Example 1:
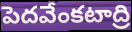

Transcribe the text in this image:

పెదవేంకటాద్రి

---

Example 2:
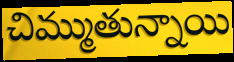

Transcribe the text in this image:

చిమ్ముతున్నాయి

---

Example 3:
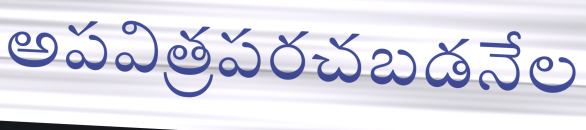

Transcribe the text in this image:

అపవిత్రపరచబడనేల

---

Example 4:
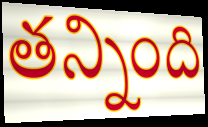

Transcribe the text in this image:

తన్నింది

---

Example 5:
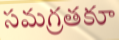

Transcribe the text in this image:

సమగ్రతకూ